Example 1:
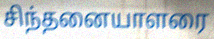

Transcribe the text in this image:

சிந்தனையாளரை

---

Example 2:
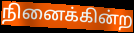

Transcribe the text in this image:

நினைக்கின்ற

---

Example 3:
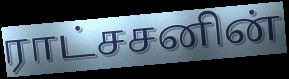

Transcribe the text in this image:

ராட்சசனின்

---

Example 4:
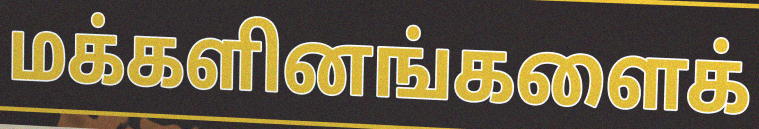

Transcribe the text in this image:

மக்களினங்களைக்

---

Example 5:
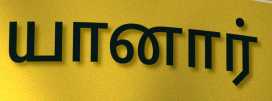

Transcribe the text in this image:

யானார்